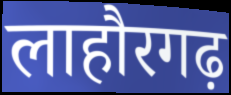
लाहौरगढ़